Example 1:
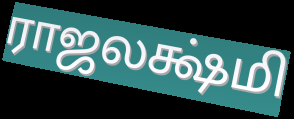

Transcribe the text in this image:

ராஜலக்ஷ்மி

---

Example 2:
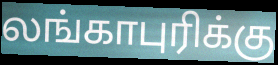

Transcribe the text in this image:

லங்காபுரிக்கு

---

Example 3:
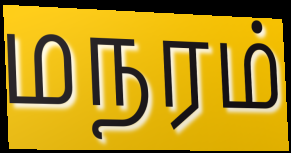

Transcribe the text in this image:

மநரம்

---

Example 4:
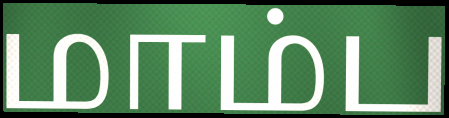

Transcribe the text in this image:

மாம்ப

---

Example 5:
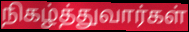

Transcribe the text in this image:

நிகழ்த்துவார்கள்